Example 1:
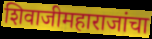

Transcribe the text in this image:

शिवाजीमहाराजांचा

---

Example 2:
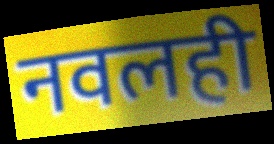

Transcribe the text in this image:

नवलही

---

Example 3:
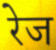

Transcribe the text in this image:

रेज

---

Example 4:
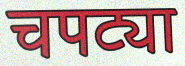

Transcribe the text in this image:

चपट्या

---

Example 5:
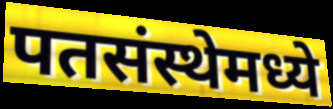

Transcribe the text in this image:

पतसंस्थेमध्ये